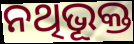
ନଥିଭୂକ୍ତ